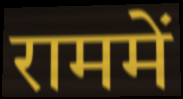
राममें